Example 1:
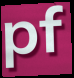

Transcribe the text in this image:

pf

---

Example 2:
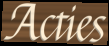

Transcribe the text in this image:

Acties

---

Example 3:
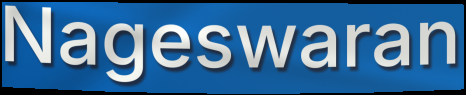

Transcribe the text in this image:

Nageswaran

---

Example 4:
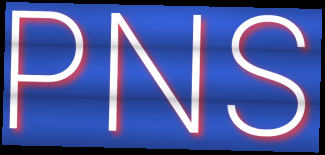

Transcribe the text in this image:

PNS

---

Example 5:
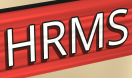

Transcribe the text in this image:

HRMS